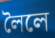
লৈলে